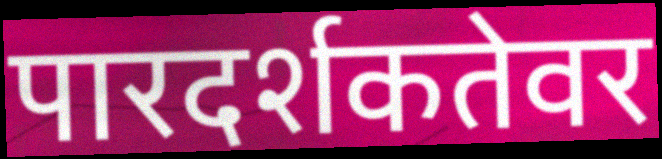
पारदर्शकतेवर